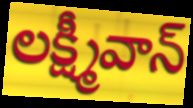
లక్ష్మీవాన్